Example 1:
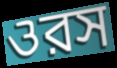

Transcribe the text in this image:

ওরস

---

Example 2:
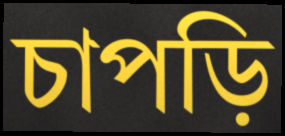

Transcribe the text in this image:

চাপড়ি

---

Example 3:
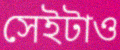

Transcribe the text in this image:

সেইটাও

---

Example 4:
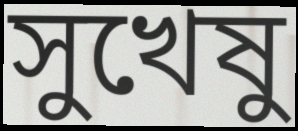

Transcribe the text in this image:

সুখেষু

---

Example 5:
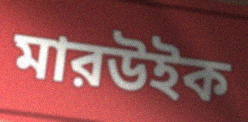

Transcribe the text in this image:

মারউইক